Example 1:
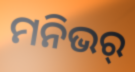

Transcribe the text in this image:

ମନିଭର୍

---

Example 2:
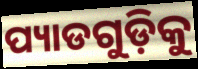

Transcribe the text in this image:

ପ୍ୟାଡଗୁଡ଼ିକୁ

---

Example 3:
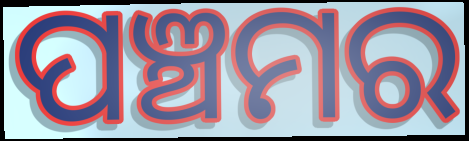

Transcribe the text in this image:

ପଞ୍ଚମର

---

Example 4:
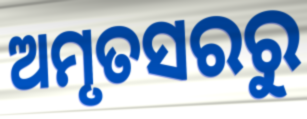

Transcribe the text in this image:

ଅମୃତସରରୁ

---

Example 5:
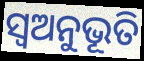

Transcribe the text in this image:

ସ୍ୱଅନୁଭୂତି